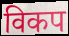
विकप